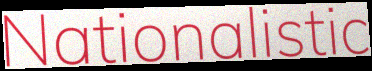
Nationalistic